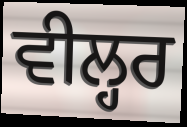
ਵੀਲ੍ਹਰ